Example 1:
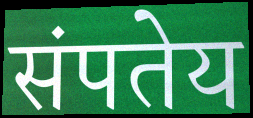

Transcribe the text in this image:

संपतेय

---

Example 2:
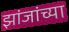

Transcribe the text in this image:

झांजांच्या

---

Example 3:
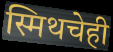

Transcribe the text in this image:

स्मिथचेही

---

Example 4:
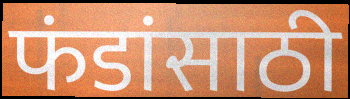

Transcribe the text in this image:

फंडांसाठी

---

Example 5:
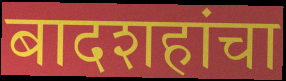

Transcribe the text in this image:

बादशहांचा